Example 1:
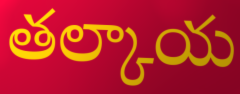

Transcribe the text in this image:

తల్కాయ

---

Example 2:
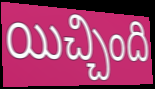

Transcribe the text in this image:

యిచ్చింది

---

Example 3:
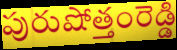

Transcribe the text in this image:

పురుషోత్తంరెడ్డి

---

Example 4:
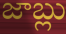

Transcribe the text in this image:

జాబ్లు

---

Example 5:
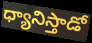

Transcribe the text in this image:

ధ్యానిస్తాడో